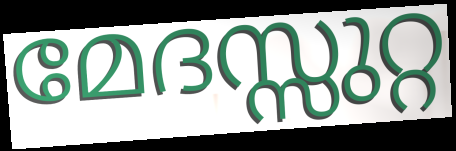
മേദസ്സുറ്റ